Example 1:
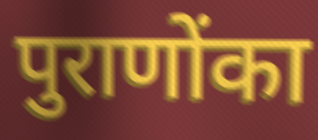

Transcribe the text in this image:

पुराणोंका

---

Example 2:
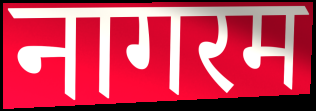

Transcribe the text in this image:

नागरम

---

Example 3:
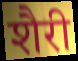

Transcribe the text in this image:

शैरी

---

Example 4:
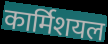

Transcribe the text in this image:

कार्मिशयल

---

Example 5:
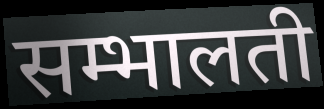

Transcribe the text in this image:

सम्भालती